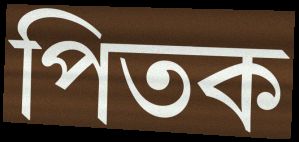
পিতক